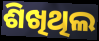
ଶିଖିଥିଲ